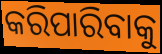
କରିପାରିବାକୁ